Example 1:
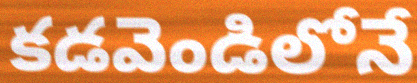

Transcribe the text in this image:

కడవెండిలోనే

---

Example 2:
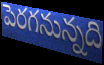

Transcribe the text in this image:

పెరగనున్నది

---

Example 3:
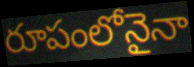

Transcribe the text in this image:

రూపంలోనైనా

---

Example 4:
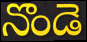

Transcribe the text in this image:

నొండె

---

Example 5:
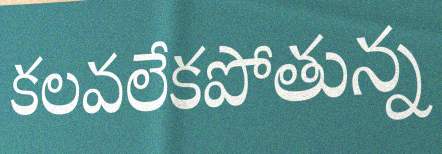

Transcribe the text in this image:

కలవలేకపోతున్న